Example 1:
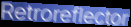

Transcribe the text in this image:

Retroreflector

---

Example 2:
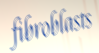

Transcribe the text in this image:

fibroblasts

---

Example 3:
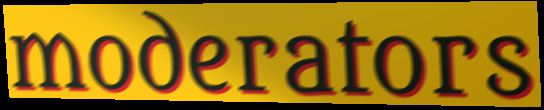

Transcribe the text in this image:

moderators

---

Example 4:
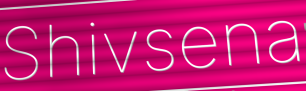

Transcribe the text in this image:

Shivsena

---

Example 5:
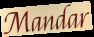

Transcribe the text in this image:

Mandar